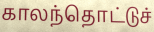
காலந்தொட்டுச்